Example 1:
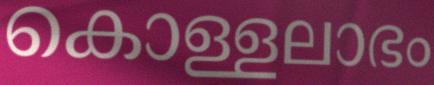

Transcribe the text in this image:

കൊള്ളലാഭം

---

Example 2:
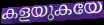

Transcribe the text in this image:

കളയുകയേ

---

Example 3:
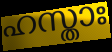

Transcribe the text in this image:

ഹസ്താഃ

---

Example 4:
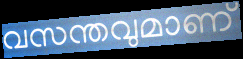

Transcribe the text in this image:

വസന്തവുമാണ്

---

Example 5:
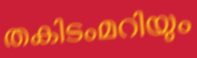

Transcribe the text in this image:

തകിടംമറിയും